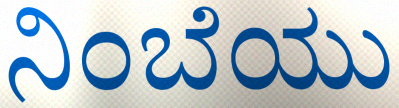
ನಿಂಬೆಯು